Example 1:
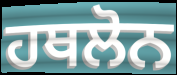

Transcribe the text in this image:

ਹਥਲੋਨ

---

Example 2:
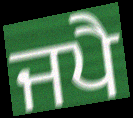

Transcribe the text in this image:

ਜਪੈ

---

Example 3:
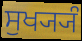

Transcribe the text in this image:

ਸੁਖ੍ਯ੍ਯੰ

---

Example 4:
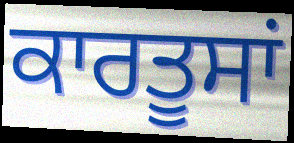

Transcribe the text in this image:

ਕਾਰਤੂਸਾਂ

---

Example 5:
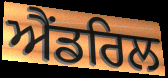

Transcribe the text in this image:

ਐਂਡਰਿਲ